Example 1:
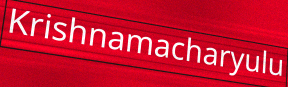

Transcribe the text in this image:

Krishnamacharyulu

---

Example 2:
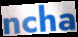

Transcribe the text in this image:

ncha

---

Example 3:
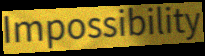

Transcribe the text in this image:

Impossibility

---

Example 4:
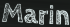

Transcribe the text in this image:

Marin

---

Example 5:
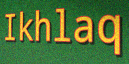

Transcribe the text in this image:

Ikhlaq